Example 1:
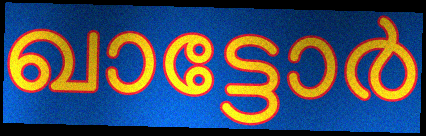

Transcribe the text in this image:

ഖാട്ടോർ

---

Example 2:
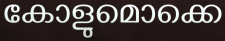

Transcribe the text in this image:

കോളുമൊക്കെ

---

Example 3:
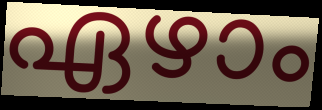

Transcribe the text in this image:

ഏഴാം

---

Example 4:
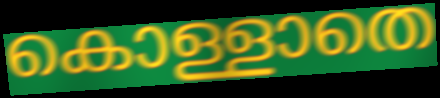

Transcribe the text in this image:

കൊള്ളാതെ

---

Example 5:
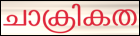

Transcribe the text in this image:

ചാക്രികത